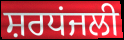
ਸ਼ਰਧਂਜਲੀ